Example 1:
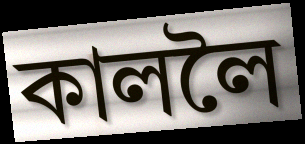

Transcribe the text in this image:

কাললৈ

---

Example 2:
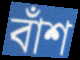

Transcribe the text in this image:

বাঁশ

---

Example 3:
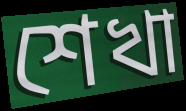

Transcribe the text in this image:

শেখা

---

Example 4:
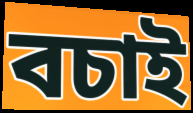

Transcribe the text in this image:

বচাই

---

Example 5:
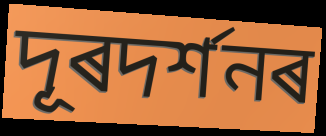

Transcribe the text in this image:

দূৰদৰ্শনৰ